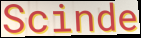
Scinde